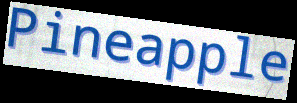
Pineapple